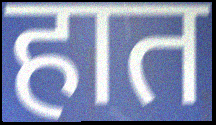
हात